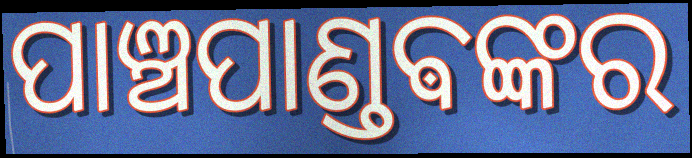
ପାଞ୍ଚପାଣ୍ଡଵଙ୍କର